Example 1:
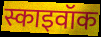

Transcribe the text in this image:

स्काइवॉक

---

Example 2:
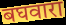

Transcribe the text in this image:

बघवारा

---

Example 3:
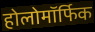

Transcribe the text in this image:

होलोमॉर्फिक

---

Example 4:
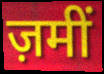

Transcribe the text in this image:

ज़मीं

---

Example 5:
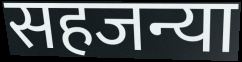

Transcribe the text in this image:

सहजन्या